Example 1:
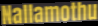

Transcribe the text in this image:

Nallamothu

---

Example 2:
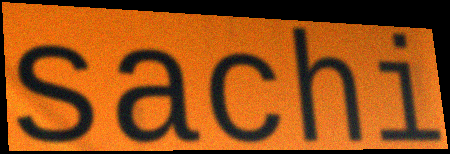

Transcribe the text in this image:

sachi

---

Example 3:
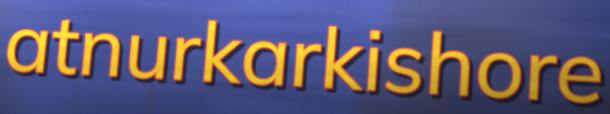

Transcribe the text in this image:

atnurkarkishore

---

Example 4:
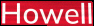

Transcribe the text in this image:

Howell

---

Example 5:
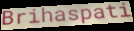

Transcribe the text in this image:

Brihaspati